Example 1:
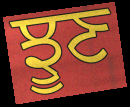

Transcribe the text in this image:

ਝੂਣ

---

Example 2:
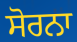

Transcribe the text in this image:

ਸੋਰਨਾ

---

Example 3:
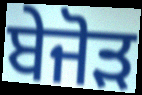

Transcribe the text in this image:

ਬੇਜੋੜ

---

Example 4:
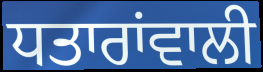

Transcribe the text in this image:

ਧਤਾਰਾਂਵਾਲੀ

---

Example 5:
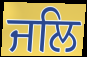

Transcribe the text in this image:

ਜਲਿ